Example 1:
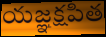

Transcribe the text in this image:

యజ్ఞక్షపిత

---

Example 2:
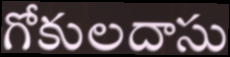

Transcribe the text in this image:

గోకులదాసు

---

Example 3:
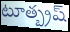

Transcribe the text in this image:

టూత్బ్రష్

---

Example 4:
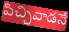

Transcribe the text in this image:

పిచ్చివాడనే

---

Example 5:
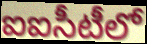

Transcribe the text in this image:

ఐఐసీటీలో